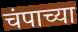
चंपाच्या